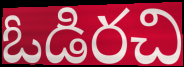
ఓడిరచి